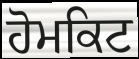
ਹੋਮਕਿਟ